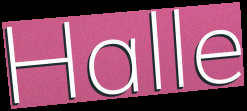
Halle